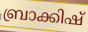
ബ്രാക്കിഷ്